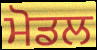
ਮੋਡਲ